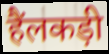
हैंलकड़ी